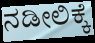
ನಡೀಲಿಕ್ಕೆ